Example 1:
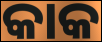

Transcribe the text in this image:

କାକ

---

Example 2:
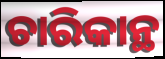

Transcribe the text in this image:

ଚାରିକାନ୍ଥ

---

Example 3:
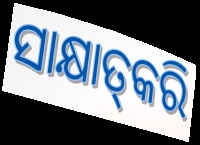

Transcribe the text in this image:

ସାକ୍ଷାତ୍‌କରି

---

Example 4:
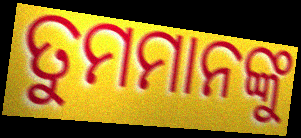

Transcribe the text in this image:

ତୁମମାନଙ୍କୁ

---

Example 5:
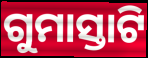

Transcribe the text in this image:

ଗୁମାସ୍ତାଟି